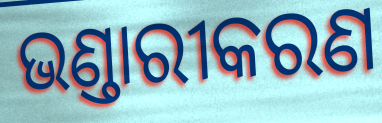
ଭଣ୍ଡାରୀକରଣ